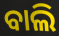
ବାଲି